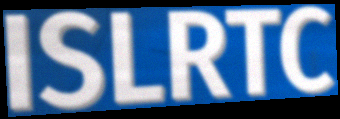
ISLRTC